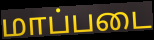
மாப்படை